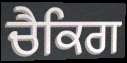
ਚੈਕਿਗ